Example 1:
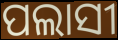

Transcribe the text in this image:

ପଲାସୀ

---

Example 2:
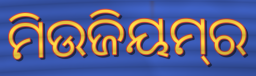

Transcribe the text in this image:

ମିଉଜିୟମ୍‌ର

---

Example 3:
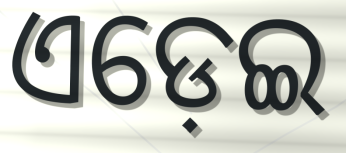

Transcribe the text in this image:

ଏଡ଼େଇ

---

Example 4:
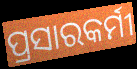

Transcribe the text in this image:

ପ୍ରସାରକର୍ମୀ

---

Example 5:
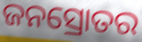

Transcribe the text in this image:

ଜନସ୍ରୋତର